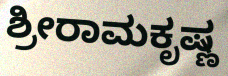
ಶ್ರೀರಾಮಕೃಷ್ಣ